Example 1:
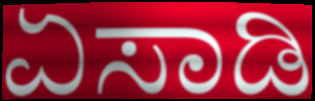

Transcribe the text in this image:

ಏಸಾಡಿ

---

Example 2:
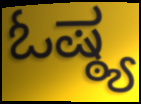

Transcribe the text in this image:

ಓಷ್ಠ್ಯ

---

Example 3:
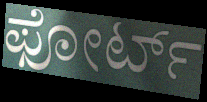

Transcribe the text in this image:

ಫೋರ್ಟ್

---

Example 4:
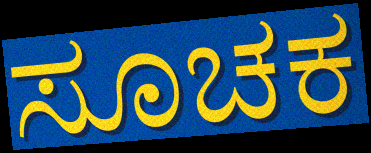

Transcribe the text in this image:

ಸೂಚಕ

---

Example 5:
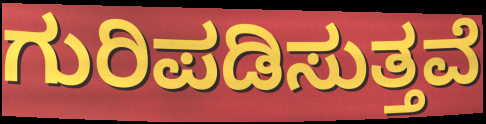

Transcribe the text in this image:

ಗುರಿಪಡಿಸುತ್ತವೆ